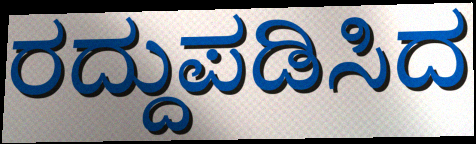
ರದ್ದುಪಡಿಸಿದ